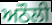
ਅਠੌਲੀ